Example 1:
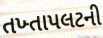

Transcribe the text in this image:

તખ્તાપલટની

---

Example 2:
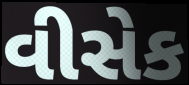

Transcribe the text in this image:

વીસેક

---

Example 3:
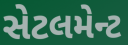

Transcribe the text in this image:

સેટલમેન્ટ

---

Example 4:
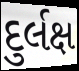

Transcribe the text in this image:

દુર્લક્ષ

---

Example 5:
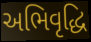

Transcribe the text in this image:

અભિવૃદ્ધિ